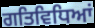
ਗਤਿਵਿਧਿਆਂ